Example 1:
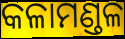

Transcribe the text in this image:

କଳାମଣ୍ଡଳ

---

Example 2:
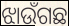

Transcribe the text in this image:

ଝାଉଁଗଛ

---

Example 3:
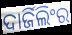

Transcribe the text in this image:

ଦାର୍ଜିଲିଂର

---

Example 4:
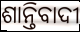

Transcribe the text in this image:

ଶାନ୍ତିବାଦୀ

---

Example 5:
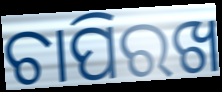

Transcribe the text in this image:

ଚାପିରଖ